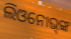
ଲିଓନୋଭ୍‌ଙ୍କ